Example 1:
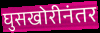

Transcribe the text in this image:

घुसखोरीनंतर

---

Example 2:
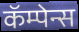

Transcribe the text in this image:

कॅम्पेन्स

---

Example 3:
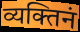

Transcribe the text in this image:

व्यक्तिनं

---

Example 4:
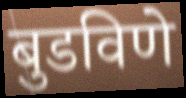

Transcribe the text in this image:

बुडविणे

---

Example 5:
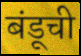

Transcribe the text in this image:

बंडूची